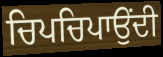
ਚਿਪਚਿਪਾਉਂਦੀ